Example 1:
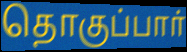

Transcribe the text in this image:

தொகுப்பார்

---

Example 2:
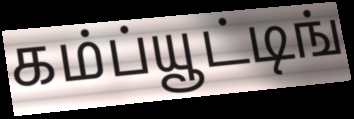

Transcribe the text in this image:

கம்ப்யூட்டிங்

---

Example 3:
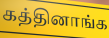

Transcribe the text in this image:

கத்தினாங்க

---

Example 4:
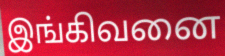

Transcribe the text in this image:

இங்கிவனை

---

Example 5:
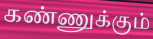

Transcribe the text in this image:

கண்ணுக்கும்